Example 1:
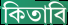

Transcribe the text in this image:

কিতাবি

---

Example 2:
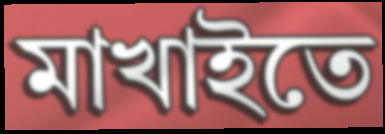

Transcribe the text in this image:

মাখাইতে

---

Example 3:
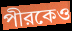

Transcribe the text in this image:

পীরকেও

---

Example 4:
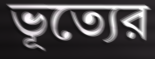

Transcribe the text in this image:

ভূত্যের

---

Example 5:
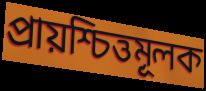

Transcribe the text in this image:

প্রায়শ্চিত্তমূলক